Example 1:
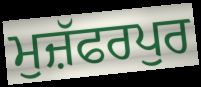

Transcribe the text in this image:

ਮੁਜ਼ੱਫਰਪੁਰ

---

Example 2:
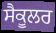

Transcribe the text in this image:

ਸੈਕੂਲਰ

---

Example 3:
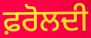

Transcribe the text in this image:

ਫ਼ਰੋਲਦੀ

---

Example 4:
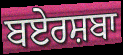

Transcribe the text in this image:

ਬਏਰਸ਼ਬਾ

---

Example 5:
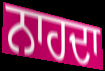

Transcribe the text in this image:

ਨਾਹਦਾ